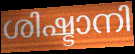
ശിഷ്ടാനി